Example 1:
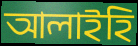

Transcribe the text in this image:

আলাইহি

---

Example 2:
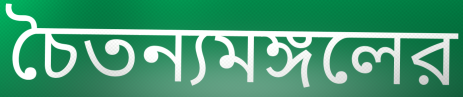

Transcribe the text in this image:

চৈতন্যমঙ্গলের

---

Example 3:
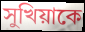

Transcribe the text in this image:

সুখিয়াকে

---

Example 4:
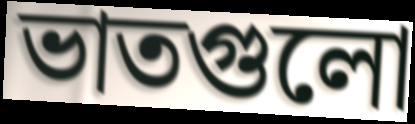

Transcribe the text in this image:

ভাতগুলো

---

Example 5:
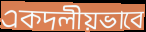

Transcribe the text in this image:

একদলীয়ভাবে